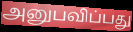
அனுபவிப்பது